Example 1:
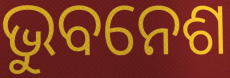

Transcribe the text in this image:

ଭୁବନେଶ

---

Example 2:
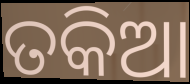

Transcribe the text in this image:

ତକିଆ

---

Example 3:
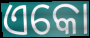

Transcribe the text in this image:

ଏକୋ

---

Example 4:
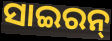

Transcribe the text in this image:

ସାଇରନ୍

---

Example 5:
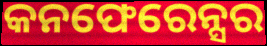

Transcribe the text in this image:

କନଫେରେନ୍ସର